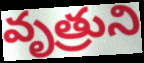
వృత్రుని